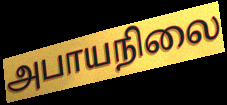
அபாயநிலை